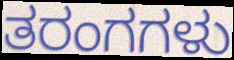
ತರಂಗಗಳು